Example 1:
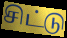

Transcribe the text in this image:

சிட்டு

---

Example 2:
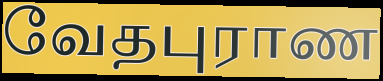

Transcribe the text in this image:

வேதபுராண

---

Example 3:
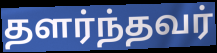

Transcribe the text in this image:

தளர்ந்தவர்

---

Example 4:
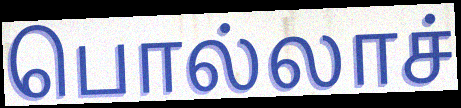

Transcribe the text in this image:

பொல்லாச்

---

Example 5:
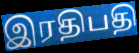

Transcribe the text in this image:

இரதிபதி